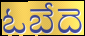
ఓబేదె